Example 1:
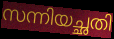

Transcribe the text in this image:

സന്നിയച്ഛതി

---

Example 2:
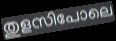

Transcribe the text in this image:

തുളസിപോലെ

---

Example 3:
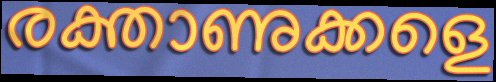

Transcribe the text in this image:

രക്താണുക്കളെ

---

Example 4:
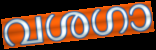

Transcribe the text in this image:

വശഗാ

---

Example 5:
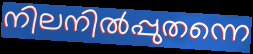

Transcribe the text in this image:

നിലനിൽപ്പുതന്നെ